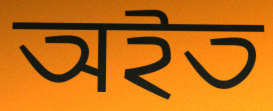
অইত